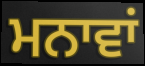
ਮਨਾਵਾਂ